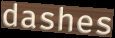
dashes